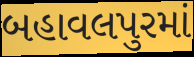
બહાવલપુરમાં